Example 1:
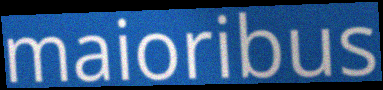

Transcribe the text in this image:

maioribus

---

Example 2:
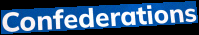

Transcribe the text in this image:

Confederations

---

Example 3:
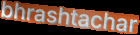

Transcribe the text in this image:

bhrashtachar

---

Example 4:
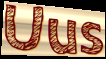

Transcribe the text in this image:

Uus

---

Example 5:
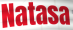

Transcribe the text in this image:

Natasa